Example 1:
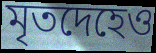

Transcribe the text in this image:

মৃতদেহেও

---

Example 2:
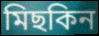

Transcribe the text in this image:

মিছকিন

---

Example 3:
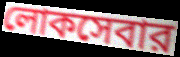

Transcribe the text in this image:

লোকসেবার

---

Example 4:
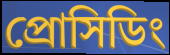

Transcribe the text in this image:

প্রোসিডিং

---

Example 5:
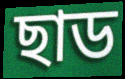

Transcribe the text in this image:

ছাড